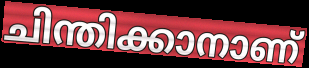
ചിന്തിക്കാനാണ്